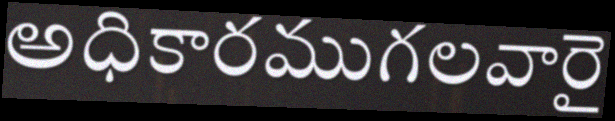
అధికారముగలవారై